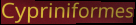
Cypriniformes